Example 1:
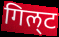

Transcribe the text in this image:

गिल्ट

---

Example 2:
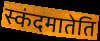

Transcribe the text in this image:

स्कंदमातेति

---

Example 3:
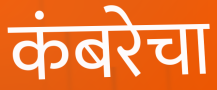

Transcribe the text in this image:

कंबरेचा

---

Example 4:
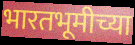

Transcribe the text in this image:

भारतभूमीच्या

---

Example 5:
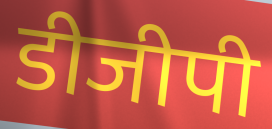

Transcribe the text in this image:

डीजीपी